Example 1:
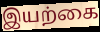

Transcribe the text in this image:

இயற்கை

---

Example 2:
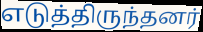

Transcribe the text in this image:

எடுத்திருந்தனர்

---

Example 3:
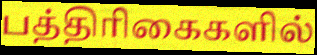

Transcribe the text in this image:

பத்திரிகைகளில்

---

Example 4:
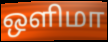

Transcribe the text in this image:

ஒளிமா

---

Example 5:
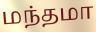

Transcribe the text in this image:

மந்தமா